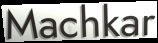
Machkar